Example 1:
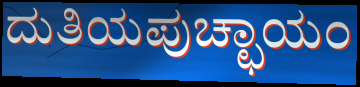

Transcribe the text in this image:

ದುತಿಯಪುಚ್ಛಾಯಂ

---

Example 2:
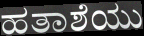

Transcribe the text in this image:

ಹತಾಶೆಯು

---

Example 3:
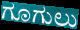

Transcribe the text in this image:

ಗೂಗುಲು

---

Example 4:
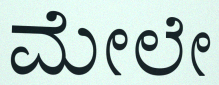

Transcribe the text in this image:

ಮೇಲೇ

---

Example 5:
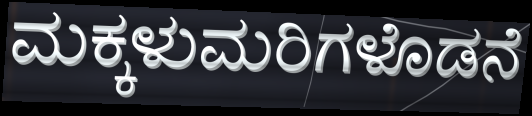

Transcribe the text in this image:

ಮಕ್ಕಳುಮರಿಗಳೊಡನೆ